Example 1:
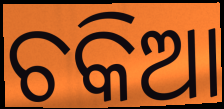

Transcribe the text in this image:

ଚକିଆ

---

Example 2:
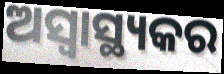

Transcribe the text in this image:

ଅସ୍ବାସ୍ଥ୍ୟକର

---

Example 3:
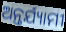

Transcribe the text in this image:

ଅନ୍ତର୍ଯ୍ୟାମୀ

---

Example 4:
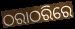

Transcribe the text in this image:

ଠରାଠରିରେ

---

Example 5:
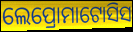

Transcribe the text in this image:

ଲେପ୍ରୋମାଟୋସିସ